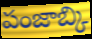
పంజాబ్కి